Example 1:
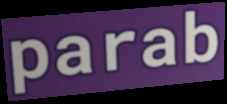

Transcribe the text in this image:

parab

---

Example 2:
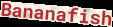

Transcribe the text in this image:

Bananafish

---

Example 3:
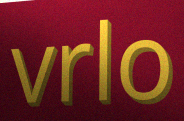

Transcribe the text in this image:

vrlo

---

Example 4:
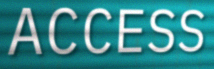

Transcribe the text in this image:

ACCESS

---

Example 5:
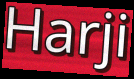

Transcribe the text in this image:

Harji